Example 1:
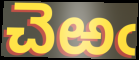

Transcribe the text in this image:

చెఱఁ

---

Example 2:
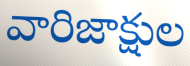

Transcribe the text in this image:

వారిజాక్షుల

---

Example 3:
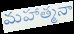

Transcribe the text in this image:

మహాత్మనా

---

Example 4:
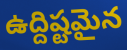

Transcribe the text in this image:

ఉద్దిష్టమైన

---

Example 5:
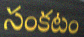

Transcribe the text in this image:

సంకటం